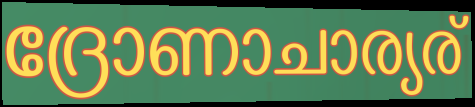
ദ്രോണാചാര്യര്